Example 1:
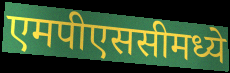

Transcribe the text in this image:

एमपीएससीमध्ये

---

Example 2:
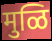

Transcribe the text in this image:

मुळि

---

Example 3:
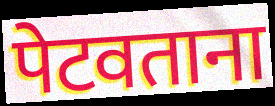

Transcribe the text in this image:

पेटवताना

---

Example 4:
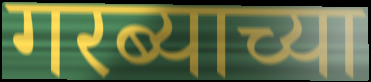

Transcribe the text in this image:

गरब्याच्या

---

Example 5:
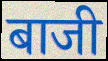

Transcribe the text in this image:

बाजी